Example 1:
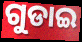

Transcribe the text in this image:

ଗୁଡାଇ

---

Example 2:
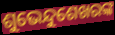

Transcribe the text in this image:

ଶୁଭେନ୍ଦୁଶେଖରଙ୍କ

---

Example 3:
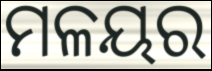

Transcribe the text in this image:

ମଳୟର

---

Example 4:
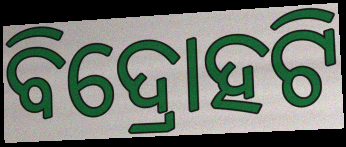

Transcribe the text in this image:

ବିଦ୍ରୋହଟି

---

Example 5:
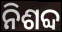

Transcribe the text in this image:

ନିଶବ୍ଦ